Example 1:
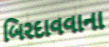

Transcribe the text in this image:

બિરદાવવાના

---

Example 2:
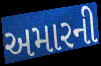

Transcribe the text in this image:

અમારની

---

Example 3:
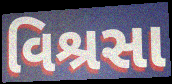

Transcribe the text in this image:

વિશ્રસા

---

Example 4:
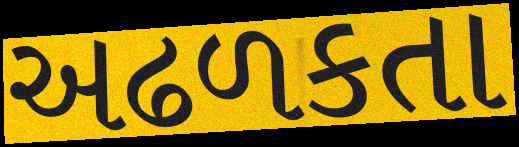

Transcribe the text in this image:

અઢળકતા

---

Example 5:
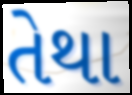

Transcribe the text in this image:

તેથા